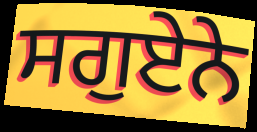
ਸਗੁਏਨੇ